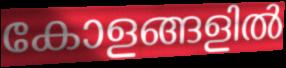
കോളങ്ങളിൽ